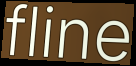
fline